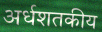
अर्धशतकीय